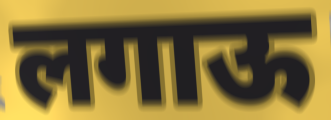
लगाऊ